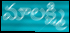
మాలక్ష్మి